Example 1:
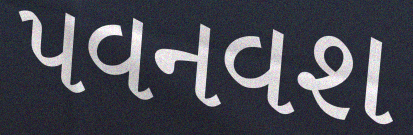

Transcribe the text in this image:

પવનવશ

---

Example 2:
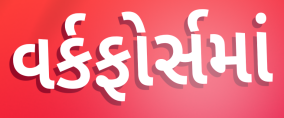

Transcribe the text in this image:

વર્કફોર્સમાં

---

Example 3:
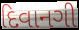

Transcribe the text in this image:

દિવાનગી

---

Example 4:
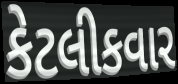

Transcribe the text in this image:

કેટલીકવાર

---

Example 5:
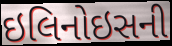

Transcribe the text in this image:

ઇલિનોઇસની